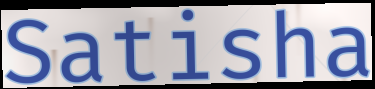
Satisha